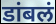
डांबलं